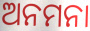
ଅନମନା